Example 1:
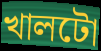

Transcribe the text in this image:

খালটো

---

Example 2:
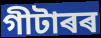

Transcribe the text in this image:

গীটাৰৰ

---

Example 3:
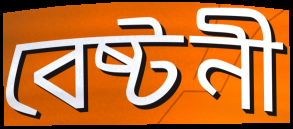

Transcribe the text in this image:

বেষ্টনী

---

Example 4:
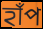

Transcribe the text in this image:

হাঁপ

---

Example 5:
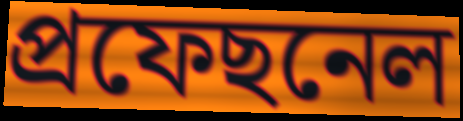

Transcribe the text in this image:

প্ৰফেছনেল